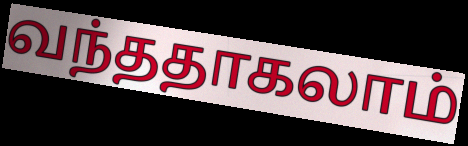
வந்ததாகலாம்